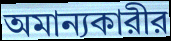
অমান্যকারীর